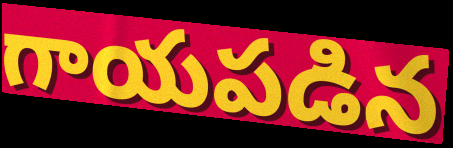
గాయపడిన